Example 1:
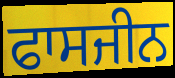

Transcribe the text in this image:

ਫਾਸਜੀਨ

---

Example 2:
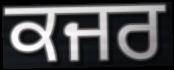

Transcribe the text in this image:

ਕਜਰ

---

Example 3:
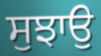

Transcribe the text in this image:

ਸੁਝਾਉ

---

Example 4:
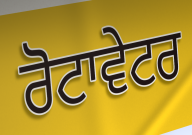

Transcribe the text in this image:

ਰੋਟਾਵੇਟਰ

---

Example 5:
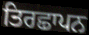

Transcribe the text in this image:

ਤਿਰਛਾਪਨ